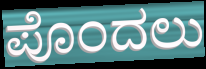
ಪೊಂದಲು